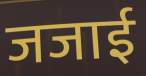
जजाई